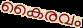
കൈരവം